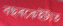
বছৰকেইটাত